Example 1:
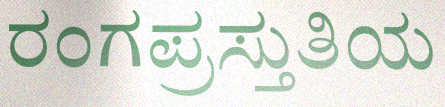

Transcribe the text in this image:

ರಂಗಪ್ರಸ್ತುತಿಯ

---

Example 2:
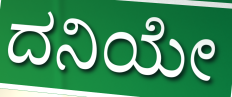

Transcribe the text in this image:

ದನಿಯೇ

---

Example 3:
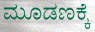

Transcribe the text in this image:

ಮೂಡಣಕ್ಕೆ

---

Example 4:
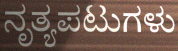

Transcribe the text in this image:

ನೃತ್ಯಪಟುಗಳು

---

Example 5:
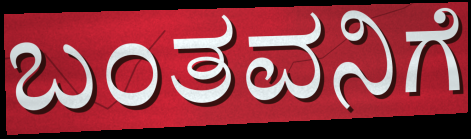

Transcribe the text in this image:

ಬಂತವನಿಗೆ